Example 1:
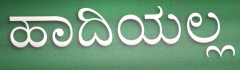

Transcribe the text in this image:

ಹಾದಿಯಲ್ಲ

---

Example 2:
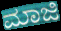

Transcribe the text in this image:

ಮಾಜಿ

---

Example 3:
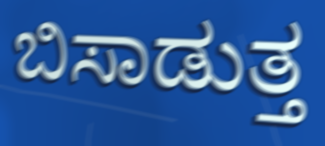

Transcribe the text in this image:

ಬಿಸಾಡುತ್ತ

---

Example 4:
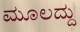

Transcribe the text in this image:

ಮೂಲದ್ದು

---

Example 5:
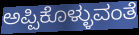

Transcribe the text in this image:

ಅಪ್ಪಿಕೊಳ್ಳುವಂತೆ